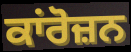
ਕਾਂਰੋਜ਼ਨ